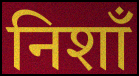
निशाँ